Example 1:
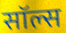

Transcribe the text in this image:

सॉल्स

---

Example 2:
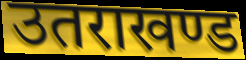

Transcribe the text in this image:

उतराखण्ड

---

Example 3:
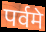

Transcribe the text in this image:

पर्वमे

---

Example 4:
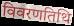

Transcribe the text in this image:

विवरणतिथि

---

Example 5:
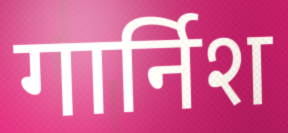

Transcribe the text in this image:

गार्निश